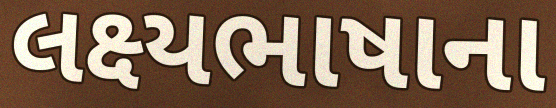
લક્ષ્યભાષાના